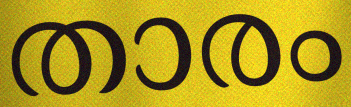
താരം